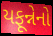
યફૂન્નેનો